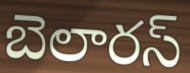
బెలారస్